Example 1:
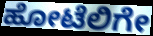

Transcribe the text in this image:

ಹೋಟೆಲಿಗೇ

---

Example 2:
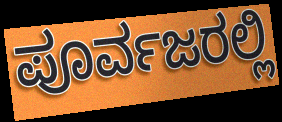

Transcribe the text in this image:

ಪೂರ್ವಜರಲ್ಲಿ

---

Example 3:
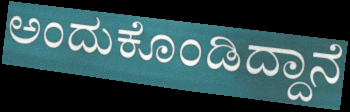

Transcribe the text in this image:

ಅಂದುಕೊಂಡಿದ್ದಾನೆ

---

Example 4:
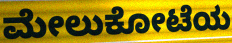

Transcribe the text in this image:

ಮೇಲುಕೋಟೆಯ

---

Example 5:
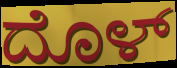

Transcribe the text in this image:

ದೊಳ್